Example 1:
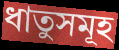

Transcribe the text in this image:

ধাতুসমূহ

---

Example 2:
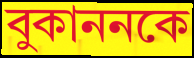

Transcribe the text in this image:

বুকাননকে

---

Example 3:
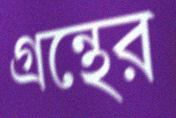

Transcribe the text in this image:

গ্রন্থের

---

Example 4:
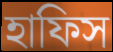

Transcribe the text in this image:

হাফিস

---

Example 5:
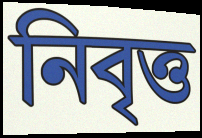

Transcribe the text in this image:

নিবৃত্ত